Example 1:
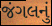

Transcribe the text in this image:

જંગલનું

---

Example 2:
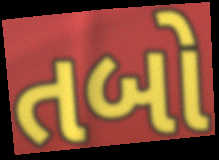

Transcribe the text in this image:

તબો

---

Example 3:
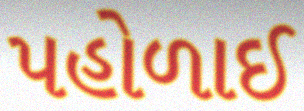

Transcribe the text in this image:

પહોળાઈ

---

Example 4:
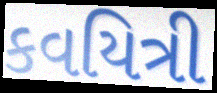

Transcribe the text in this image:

કવયિત્રી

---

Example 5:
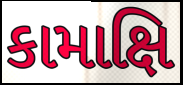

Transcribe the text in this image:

કામાક્ષિ